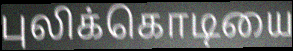
புலிக்கொடியை